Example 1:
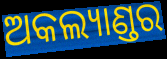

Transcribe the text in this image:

ଅକଲ୍ୟାଣ୍ଡର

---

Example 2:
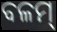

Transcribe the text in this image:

ବଳମ୍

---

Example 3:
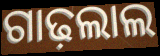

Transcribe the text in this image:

ଗାଢ଼ଲାଲ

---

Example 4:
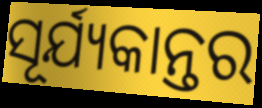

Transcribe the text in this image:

ସୂର୍ଯ୍ୟକାନ୍ତର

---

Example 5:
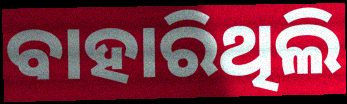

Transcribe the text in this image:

ବାହାରିଥିଲି